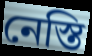
নেস্তি